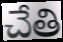
చేతి